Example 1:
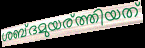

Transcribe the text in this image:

ശബ്ദമുയര്ത്തിയത്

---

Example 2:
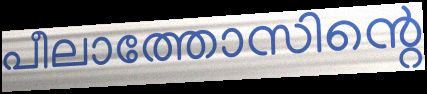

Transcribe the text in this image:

പീലാത്തോസിന്റെ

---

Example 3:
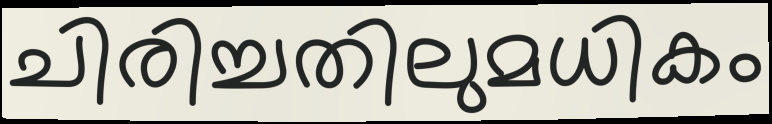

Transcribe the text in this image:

ചിരിച്ചതിലുമധികം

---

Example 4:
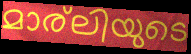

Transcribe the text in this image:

മാര്ലിയുടെ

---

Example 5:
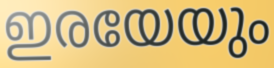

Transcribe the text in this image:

ഇരയേയും